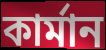
কার্মান